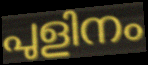
പുളിനം